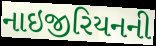
નાઇજીરિયનની